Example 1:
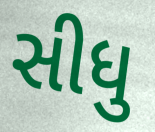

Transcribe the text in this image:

સીધુ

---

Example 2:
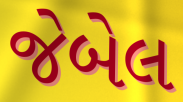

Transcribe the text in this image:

જેબેલ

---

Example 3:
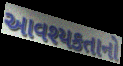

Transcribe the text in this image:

આવશ્યકતાનો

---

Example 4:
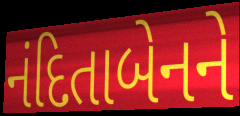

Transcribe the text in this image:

નંદિતાબેનને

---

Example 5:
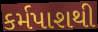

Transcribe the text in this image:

કર્મપાશથી